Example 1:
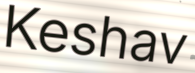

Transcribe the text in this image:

Keshav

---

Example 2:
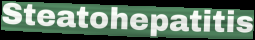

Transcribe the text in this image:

Steatohepatitis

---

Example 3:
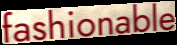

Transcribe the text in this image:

fashionable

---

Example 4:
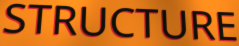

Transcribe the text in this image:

STRUCTURE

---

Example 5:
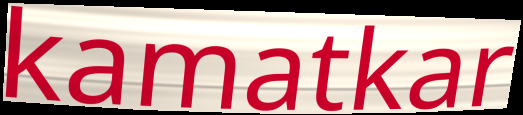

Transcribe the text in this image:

kamatkar